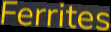
Ferrites